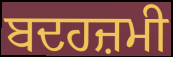
ਬਦਹਜ਼ਮੀ